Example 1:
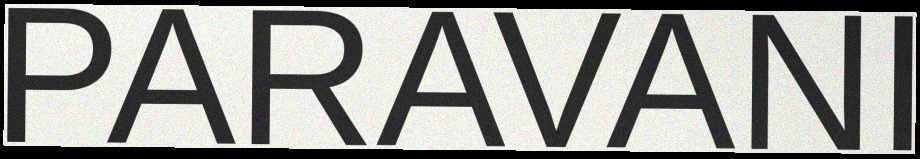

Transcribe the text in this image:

PARAVANI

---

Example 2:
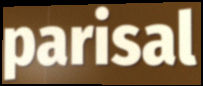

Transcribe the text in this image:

parisal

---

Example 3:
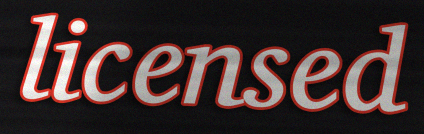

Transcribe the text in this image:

licensed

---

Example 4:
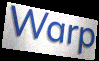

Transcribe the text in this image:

Warp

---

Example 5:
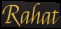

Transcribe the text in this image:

Rahat